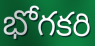
భోగకరి